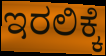
ಇರಲಿಕ್ಕೆ